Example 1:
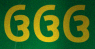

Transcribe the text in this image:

ઉઉઉ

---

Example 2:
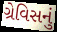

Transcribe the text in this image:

ગ્રેવિસનું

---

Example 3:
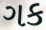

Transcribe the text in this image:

ગક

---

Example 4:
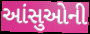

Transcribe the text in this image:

આંસુઓની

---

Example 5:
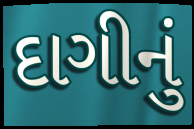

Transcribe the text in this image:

દાગીનું